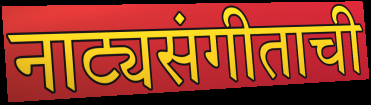
नाट्यसंगीताची